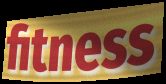
fitness